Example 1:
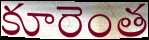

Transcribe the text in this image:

కూరెంత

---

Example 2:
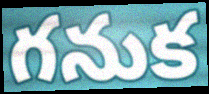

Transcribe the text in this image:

గనుక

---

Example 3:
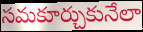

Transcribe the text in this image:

సమకూర్చుకునేలా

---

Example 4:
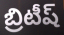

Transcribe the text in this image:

బ్రిటీష్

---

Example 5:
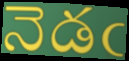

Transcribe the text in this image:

నెడఁ